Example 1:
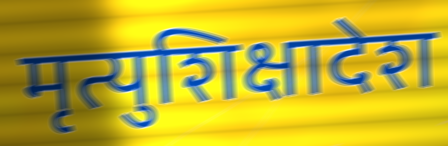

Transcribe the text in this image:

मृत्युशिक्षादेश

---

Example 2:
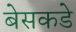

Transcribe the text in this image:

बेसकडे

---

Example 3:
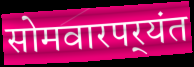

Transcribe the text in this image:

सोमवारपर्यंत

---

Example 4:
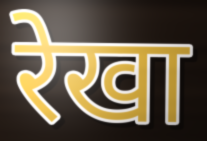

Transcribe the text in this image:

रेखा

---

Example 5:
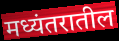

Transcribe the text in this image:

मध्यंतरातील